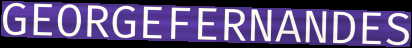
GEORGEFERNANDES